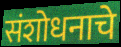
संशोधनाचे